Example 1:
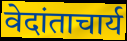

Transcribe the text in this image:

वेदांताचार्य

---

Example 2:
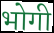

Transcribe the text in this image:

भोगी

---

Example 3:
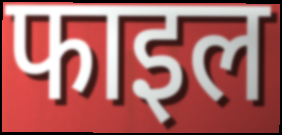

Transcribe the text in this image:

फाइल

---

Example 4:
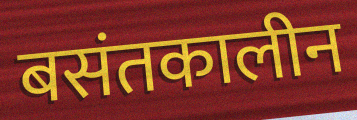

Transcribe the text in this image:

बसंतकालीन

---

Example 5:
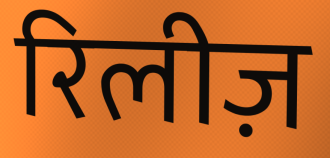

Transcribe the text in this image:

रिलीज़